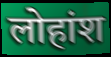
लोहांश